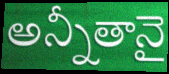
అన్నీతానై